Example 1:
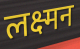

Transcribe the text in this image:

लक्ष्मन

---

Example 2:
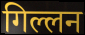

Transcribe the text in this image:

गिल्लन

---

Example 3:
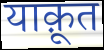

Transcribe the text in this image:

याक़ूत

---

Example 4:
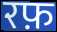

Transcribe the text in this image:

रफ़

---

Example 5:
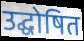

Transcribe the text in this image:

उद्घोषित